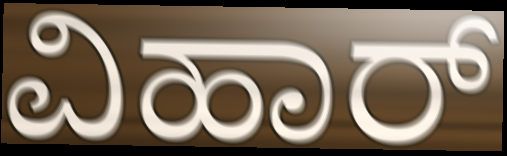
ವಿಹಾರ್